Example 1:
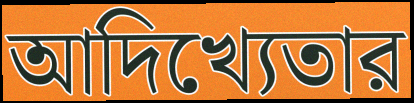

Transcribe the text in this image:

আদিখ্যেতার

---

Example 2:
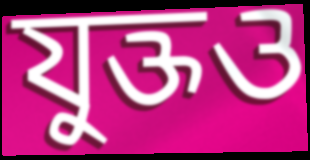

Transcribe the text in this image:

যুক্তও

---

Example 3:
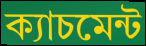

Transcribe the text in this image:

ক্যাচমেন্ট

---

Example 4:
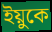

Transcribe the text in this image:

ইয়ুকে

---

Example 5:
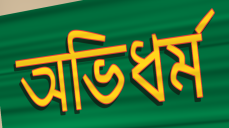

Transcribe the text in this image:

অভিধর্ম